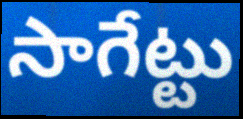
సాగేట్టు